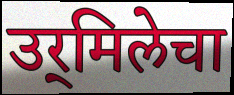
उर्मिलेचा